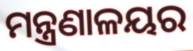
ମନ୍ତ୍ରଣାଳୟର